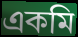
একমি